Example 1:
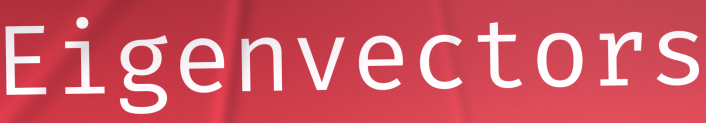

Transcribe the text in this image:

Eigenvectors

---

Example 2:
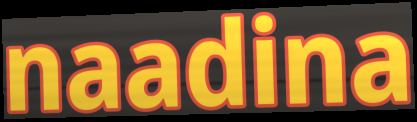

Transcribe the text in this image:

naadina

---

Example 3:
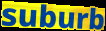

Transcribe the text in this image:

suburb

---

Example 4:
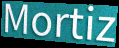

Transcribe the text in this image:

Mortiz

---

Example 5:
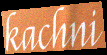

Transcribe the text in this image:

kachni